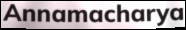
Annamacharya